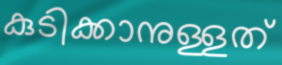
കുടിക്കാനുള്ളത്